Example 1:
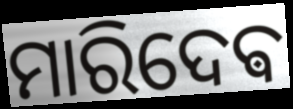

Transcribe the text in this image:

ମାରିଦେଵ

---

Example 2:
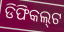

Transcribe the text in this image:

ଡିଫିକଲ୍‌ଟ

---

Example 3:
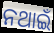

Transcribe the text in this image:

ନଥାଇଁ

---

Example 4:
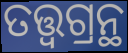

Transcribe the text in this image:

ତତ୍ତ୍ୱଗ୍ରନ୍ଥ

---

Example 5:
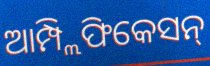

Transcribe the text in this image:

ଆମ୍ପ୍ଲିଫିକେସନ୍